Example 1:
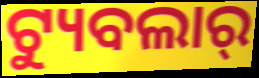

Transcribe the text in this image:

ଟ୍ୟୁବଲାର୍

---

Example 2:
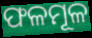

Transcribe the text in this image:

ଫଳମୂଳ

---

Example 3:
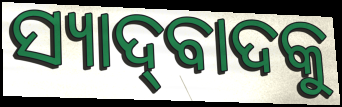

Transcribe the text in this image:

ସ୍ୟାଦ୍‌ବାଦକୁ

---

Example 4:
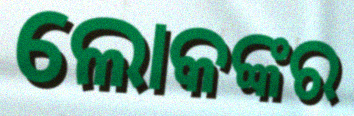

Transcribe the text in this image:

ଲୋକଙ୍କର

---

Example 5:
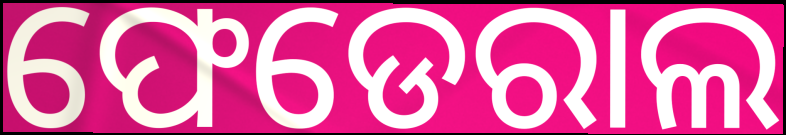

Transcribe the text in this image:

ଫେଡେରାଲ